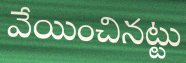
వేయించినట్టు